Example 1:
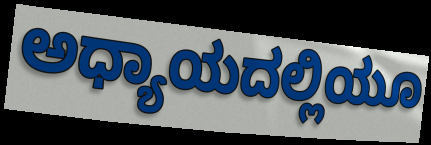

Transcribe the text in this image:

ಅಧ್ಯಾಯದಲ್ಲಿಯೂ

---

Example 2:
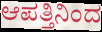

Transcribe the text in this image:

ಆಪತ್ತಿನಿಂದ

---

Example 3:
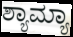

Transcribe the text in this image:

ಶ್ಯಾಮ್ಯಾ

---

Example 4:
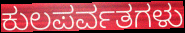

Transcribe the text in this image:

ಕುಲಪರ್ವತಗಳು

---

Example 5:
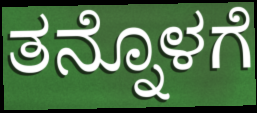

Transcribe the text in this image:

ತನ್ನೊಳಗೆ